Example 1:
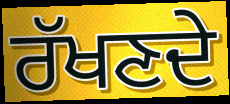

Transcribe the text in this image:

ਰੱਖਣਦੇ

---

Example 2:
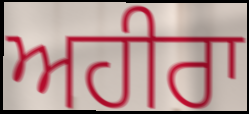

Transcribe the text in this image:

ਅਹੀਰਾ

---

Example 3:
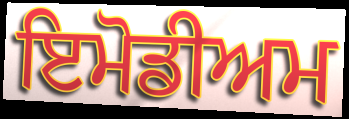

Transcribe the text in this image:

ਇਮੋਡੀਅਮ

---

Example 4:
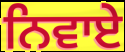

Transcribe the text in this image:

ਨਿਵਾਏ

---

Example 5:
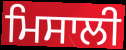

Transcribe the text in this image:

ਮਿਸਾਲੀ